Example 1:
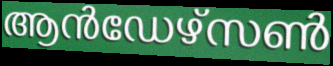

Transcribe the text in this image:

ആൻഡേഴ്സൺ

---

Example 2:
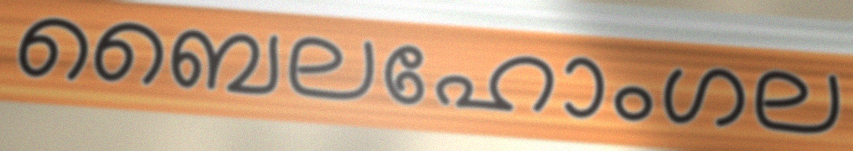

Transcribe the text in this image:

ബൈലഹോംഗല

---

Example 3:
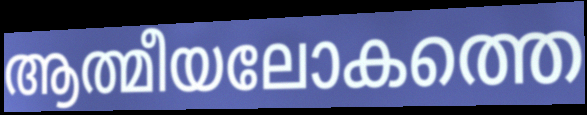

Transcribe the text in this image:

ആത്മീയലോകത്തെ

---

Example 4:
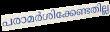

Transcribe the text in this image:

പരാമർശിക്കേണ്ടതില്ല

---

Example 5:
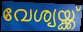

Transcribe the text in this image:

വേശ്യയ്ക്ക്